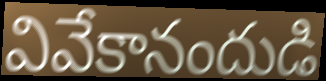
వివేకానందుడి